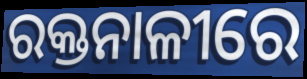
ରକ୍ତନାଳୀରେ